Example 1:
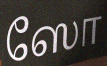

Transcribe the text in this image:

ஸோ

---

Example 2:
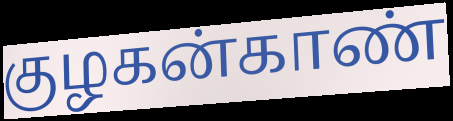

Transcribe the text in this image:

குழகன்காண்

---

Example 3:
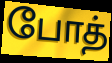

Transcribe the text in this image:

போத்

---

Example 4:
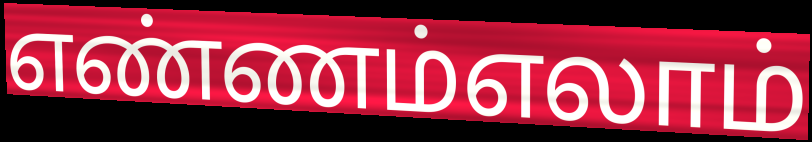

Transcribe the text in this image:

எண்ணம்எலாம்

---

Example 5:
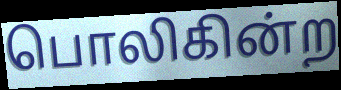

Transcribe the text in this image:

பொலிகின்ற